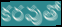
కరవుతో